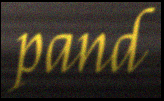
pand